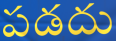
పడదు